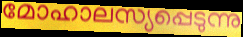
മോഹാലസ്യപ്പെടുന്നു